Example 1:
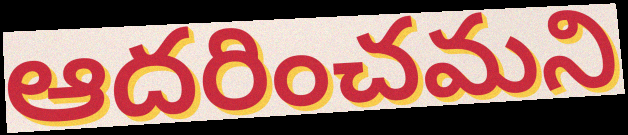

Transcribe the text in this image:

ఆదరించమని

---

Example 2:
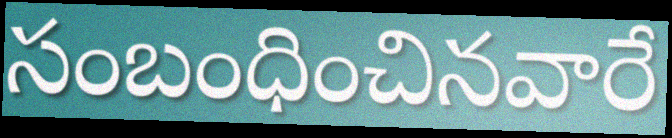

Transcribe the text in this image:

సంబంధించినవారే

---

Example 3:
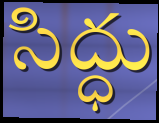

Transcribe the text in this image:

సిద్ధు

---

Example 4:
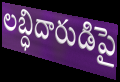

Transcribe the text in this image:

లబ్ధిదారుడిపై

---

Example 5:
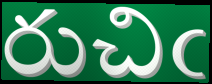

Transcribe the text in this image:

రుచిఁ